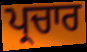
ਪ੍ਰਚਾਰ